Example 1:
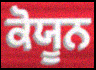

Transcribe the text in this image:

ਕੋਯੂਨ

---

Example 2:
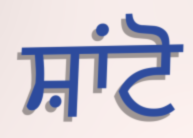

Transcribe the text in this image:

ਸ਼ਾਂਟੋ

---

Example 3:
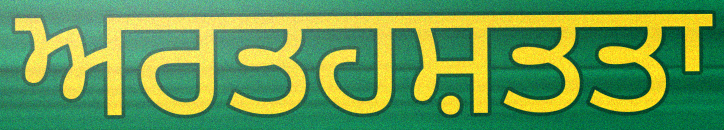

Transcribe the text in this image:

ਅਰਤਹਸ਼ਤਤਾ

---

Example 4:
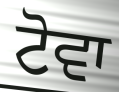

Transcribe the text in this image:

ਟੋਵਾ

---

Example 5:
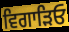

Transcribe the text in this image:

ਵਿਗਾੜਿਓ